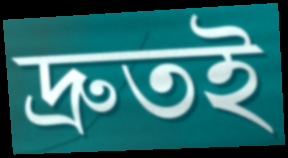
দ্রুতই